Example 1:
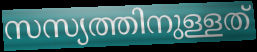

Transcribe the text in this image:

സസ്യത്തിനുള്ളത്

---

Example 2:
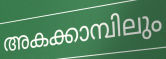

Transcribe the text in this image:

അകക്കാമ്പിലും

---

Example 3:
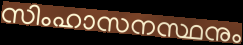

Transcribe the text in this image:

സിംഹാസനസ്ഥനും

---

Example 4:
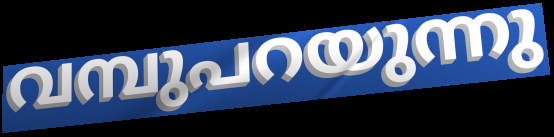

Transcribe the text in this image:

വമ്പുപറയുന്നു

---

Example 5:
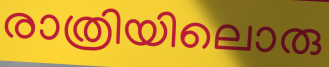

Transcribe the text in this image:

രാത്രിയിലൊരു